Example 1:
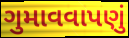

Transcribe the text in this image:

ગુમાવવાપણું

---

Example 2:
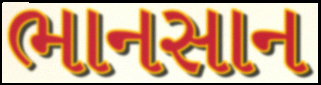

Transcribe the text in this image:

ભાનસાન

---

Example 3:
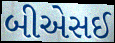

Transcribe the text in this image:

બીએસઈ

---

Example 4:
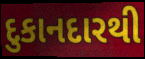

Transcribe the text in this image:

દુકાનદારથી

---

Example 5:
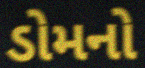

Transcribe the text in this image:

ડોમનો